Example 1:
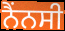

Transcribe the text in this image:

ਨੈਂਨਸੀ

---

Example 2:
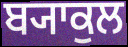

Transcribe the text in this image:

ਬ੍ਯਾਕੁਲ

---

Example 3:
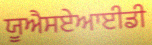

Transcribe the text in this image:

ਯੂਐਸਏਆਈਡੀ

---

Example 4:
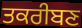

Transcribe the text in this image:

ਤਕਰੀਬਣ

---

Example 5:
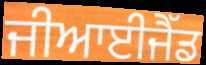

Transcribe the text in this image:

ਜੀਆਈਜੈੱਡ